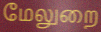
மேலுறை